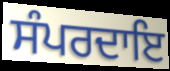
ਸੰਪਰਦਾਇ